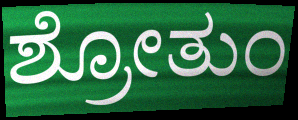
ಶ್ರೋತುಂ